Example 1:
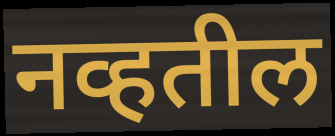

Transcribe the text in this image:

नव्हतील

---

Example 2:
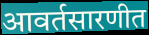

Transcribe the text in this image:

आवर्तसारणीत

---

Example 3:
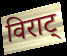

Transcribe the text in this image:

विराट्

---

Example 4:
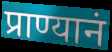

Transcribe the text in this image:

प्राण्यानं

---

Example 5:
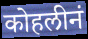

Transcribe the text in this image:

कोहलीनं